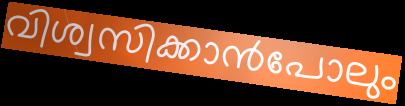
വിശ്വസിക്കാൻപോലും